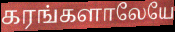
கரங்களாலேயே